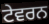
ਟੇਵਰਨ